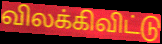
விலக்கிவிட்டு